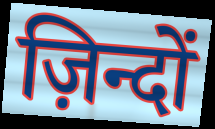
ज़िन्दों